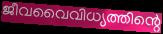
ജീവവൈവിധ്യത്തിന്റെ